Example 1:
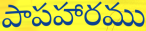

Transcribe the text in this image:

పాపహారము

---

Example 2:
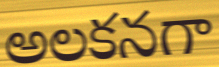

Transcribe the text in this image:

అలకనగా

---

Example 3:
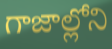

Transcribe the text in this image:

గాజాల్లోని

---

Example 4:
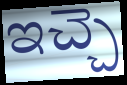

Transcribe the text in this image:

ఇచ్చె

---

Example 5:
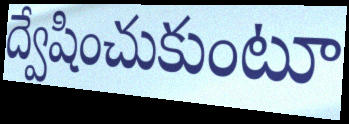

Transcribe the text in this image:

ద్వేషించుకుంటూ